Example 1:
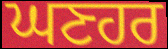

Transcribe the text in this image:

ਘਣਹਰ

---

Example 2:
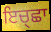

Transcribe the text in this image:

ਇਚ੍ਛਾ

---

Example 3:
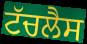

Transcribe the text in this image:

ਟੱਚਲੈਸ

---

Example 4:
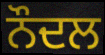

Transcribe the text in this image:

ਨੌਦਲ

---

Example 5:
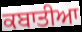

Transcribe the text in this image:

ਕਬਾਤੀਆ